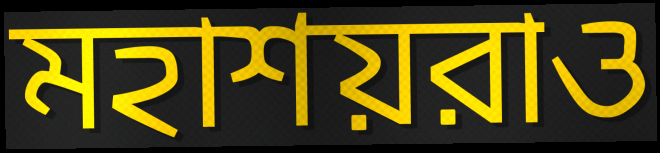
মহাশয়রাও